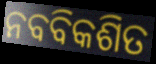
ନବବିକଶିତ